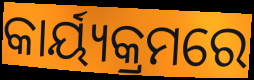
କାର୍ୟ୍ୟକ୍ରମରେ